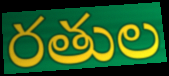
రతుల